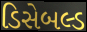
ડિસેબલ્ડ